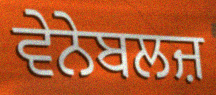
ਵੇਨੇਬਲਜ਼